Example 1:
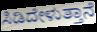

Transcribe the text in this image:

ಸಿಡಿದೇಳುತ್ತಾನೆ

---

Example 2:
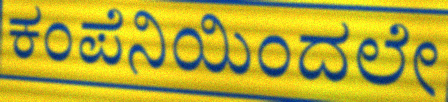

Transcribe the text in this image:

ಕಂಪೆನಿಯಿಂದಲೇ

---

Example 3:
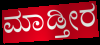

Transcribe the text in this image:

ಮಾಡ್ತೀರ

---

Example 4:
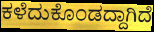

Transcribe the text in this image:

ಕಳೆದುಕೊಂಡದ್ದಾಗಿದೆ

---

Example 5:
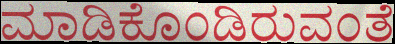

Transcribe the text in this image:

ಮಾಡಿಕೊಂಡಿರುವಂತೆ